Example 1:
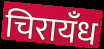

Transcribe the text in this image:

चिरायँध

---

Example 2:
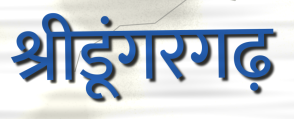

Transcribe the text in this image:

श्रीडूंगरगढ़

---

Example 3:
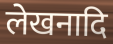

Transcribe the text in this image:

लेखनादि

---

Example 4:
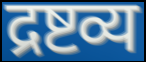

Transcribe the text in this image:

द्रष्टव्य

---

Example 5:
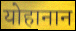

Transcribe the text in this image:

योहानान